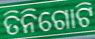
ତିନିଗୋଟି